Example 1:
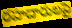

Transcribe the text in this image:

రహదారులపై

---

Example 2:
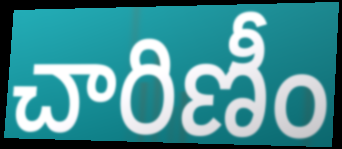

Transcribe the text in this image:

చారిణీం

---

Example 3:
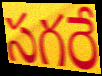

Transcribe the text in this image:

సగరే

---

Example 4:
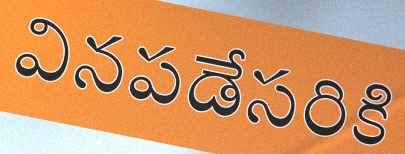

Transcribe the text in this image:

వినపడేసరికి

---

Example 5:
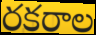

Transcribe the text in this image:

రకరాల